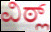
ವಿಠ್ಲ್